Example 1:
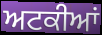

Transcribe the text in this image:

ਅਟਕੀਆਂ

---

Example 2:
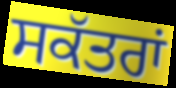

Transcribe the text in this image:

ਸਕੱਤਰਾਂ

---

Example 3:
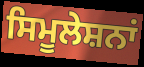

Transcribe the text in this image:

ਸਿਮੂਲੇਸ਼ਨਾਂ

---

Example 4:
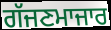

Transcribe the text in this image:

ਗੱਜਣਮਾਜਾਰ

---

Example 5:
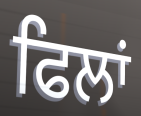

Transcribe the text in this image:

ਫਿਲਾਂ